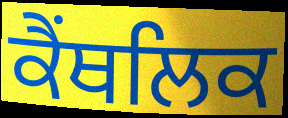
ਕੈਂਥਲਿਕ